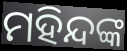
ମହିନ୍ଦଙ୍କ